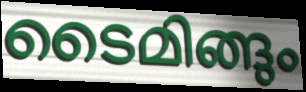
ടൈമിങ്ങും